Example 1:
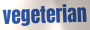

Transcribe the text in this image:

vegeterian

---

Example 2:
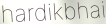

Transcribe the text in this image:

hardikbhai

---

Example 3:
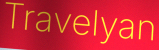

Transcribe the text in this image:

Travelyan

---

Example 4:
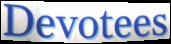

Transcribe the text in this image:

Devotees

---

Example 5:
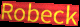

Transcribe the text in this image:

Robeck